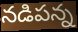
నడిపన్న